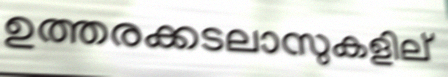
ഉത്തരക്കടലാസുകളില്